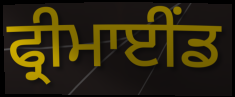
ਫ੍ਰੀਮਾਈਂਡ